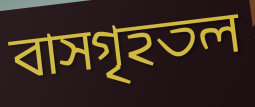
বাসগৃহতল